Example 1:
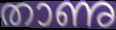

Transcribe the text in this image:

താണു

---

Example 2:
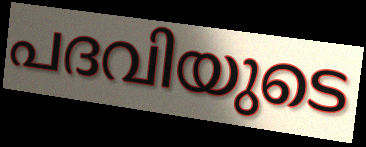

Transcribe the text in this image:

പദവിയുടെ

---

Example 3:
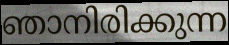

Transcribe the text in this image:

ഞാനിരിക്കുന്ന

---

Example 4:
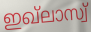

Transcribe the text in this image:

ഇഖ്ലാസ്വ്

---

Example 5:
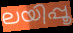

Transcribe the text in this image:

ലയിപ്പൂ